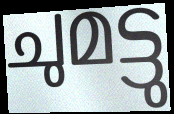
ചുമട്ടു